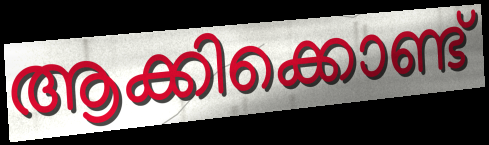
ആക്കിക്കൊണ്ട്